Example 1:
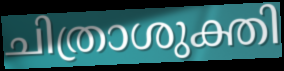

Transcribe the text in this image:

ചിത്രാശുക്തി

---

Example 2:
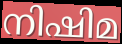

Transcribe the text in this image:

നിഷിമ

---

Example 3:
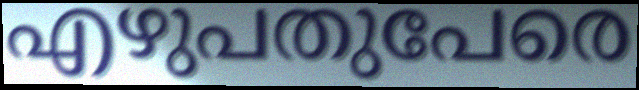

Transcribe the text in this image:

എഴുപതുപേരെ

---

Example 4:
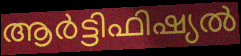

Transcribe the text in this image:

ആർട്ടിഫിഷ്യൽ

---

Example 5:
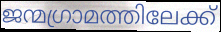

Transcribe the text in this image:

ജന്മഗ്രാമത്തിലേക്ക്